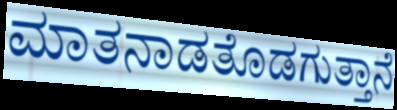
ಮಾತನಾಡತೊಡಗುತ್ತಾನೆ